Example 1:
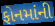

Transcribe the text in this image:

ફોનમાંની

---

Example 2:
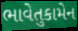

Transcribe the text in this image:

ભાવેતુકામેન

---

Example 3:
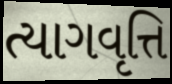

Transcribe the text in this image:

ત્યાગવૃત્તિ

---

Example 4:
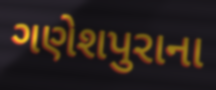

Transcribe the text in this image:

ગણેશપુરાના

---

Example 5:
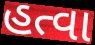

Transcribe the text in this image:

હત્વા